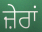
ਜ਼ੇਰਾਂ